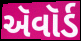
ઍવૉર્ડ